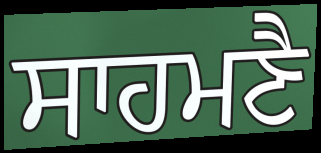
ਸਾਹਮਣੈ